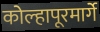
कोल्हापूरमार्गे